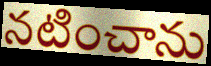
నటించాను